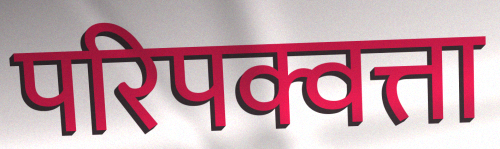
परिपक्वत्ता